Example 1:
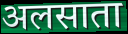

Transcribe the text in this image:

अलसाता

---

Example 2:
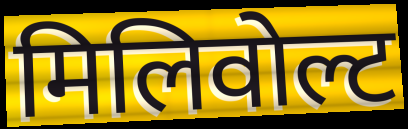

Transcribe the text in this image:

मिलिवोल्ट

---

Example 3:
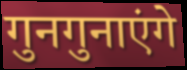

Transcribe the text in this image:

गुनगुनाएंगे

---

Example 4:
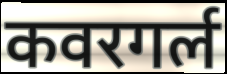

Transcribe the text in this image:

कवरगर्ल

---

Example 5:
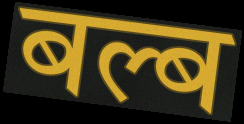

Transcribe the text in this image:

बल्ब